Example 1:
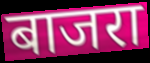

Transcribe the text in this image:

बाजरा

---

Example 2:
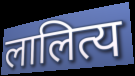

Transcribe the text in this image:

लालित्य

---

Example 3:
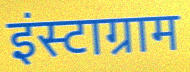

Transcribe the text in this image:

इंस्टाग्राम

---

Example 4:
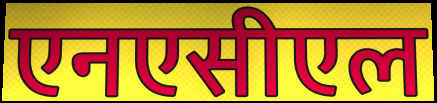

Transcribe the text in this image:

एनएसीएल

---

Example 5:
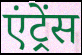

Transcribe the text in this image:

एंट्रेंस